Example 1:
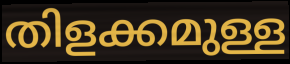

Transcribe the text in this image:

തിളക്കമുള്ള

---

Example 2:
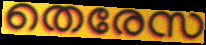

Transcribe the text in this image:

തെരേസ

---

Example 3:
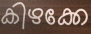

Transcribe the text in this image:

കിഴക്കേ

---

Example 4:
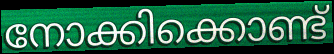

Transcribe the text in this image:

നോക്കിക്കൊണ്ട്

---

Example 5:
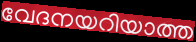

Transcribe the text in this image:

വേദനയറിയാത്ത